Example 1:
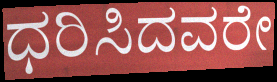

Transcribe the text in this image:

ಧರಿಸಿದವರೇ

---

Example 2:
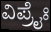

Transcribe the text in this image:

ವಿಪ್ರೈಃ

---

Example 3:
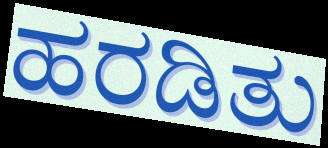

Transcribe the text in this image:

ಹರಡಿತು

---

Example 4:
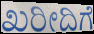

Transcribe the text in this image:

ಖರೀದಿಗೆ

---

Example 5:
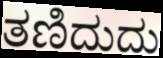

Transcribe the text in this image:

ತಣಿದುದು